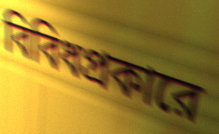
বিবিধপ্রকারে